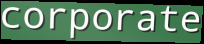
corporate